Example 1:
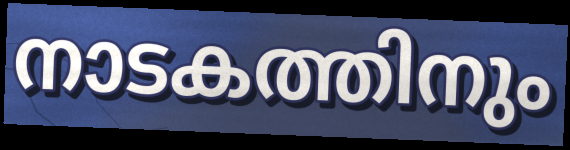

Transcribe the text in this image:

നാടകത്തിനും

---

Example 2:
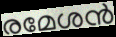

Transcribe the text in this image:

രമേശൻ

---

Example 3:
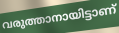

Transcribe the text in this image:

വരുത്താനായിട്ടാണ്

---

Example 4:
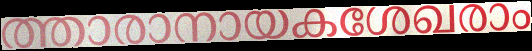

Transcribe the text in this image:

ത്താരാനായകശേഖരാം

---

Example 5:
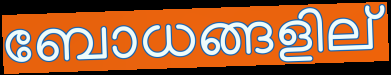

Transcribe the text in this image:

ബോധങ്ങളില്